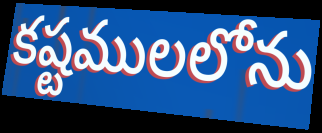
కష్టములలోను